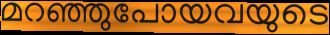
മറഞ്ഞുപോയവയുടെ